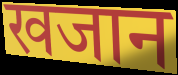
खजान